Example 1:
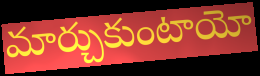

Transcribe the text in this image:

మార్చుకుంటాయో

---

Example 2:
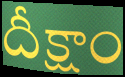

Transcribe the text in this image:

దీక్షాం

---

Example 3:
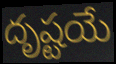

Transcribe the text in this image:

దృష్టయే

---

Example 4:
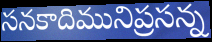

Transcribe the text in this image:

సనకాదిమునిప్రసన్న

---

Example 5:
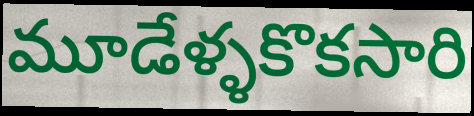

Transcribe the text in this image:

మూడేళ్ళకొకసారి